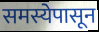
समस्येपासून